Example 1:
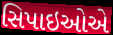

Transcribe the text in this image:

સિપાઇઓએ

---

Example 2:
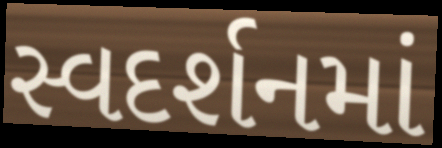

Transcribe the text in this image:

સ્વદર્શનમાં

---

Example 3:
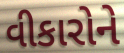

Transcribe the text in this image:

વીકારોને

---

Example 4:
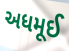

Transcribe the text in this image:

અધમૂઈ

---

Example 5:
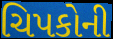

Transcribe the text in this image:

ચિપકોની